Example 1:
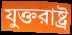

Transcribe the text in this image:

যুক্তরাষ্ট্র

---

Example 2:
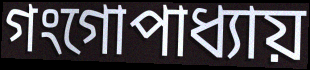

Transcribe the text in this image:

গংগোপাধ্যায়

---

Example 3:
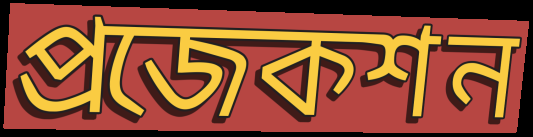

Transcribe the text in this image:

প্রজেকশন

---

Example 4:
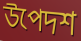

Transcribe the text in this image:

উপেদশ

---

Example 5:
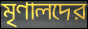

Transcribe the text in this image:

মৃণালদের